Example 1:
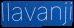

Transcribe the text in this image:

Ilavanji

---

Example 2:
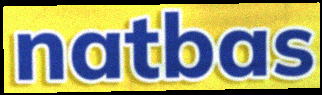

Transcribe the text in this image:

natbas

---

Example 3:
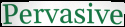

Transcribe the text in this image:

Pervasive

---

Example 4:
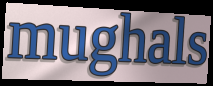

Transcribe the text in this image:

mughals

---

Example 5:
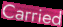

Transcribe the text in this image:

Carried